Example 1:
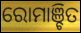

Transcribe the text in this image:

ରୋମାଞ୍ଚିତ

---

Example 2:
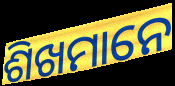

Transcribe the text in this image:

ଶିଖମାନେ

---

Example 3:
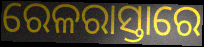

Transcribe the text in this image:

ରେଳରାସ୍ତାରେ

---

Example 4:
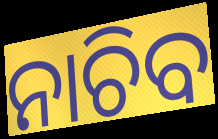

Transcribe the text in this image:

ନାଚିବ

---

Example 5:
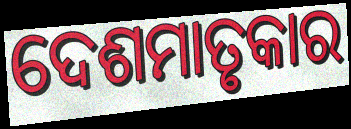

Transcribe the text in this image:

ଦେଶମାତୃକାର